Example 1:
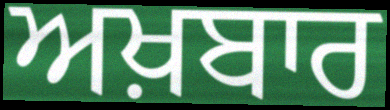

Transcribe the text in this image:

ਅਖ਼ਬਾਰ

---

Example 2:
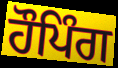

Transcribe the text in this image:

ਹੌਪਿੰਗ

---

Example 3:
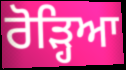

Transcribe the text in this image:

ਰੋੜ੍ਹਿਆ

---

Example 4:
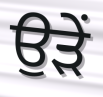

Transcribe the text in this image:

ਉੜੇਂ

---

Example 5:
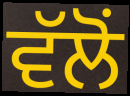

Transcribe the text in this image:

ਵੱਲੋਂ